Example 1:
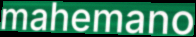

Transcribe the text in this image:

mahemano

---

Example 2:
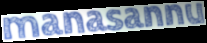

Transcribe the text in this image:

manasannu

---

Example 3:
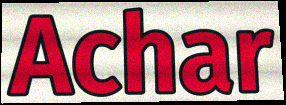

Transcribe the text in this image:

Achar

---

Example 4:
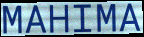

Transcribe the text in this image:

MAHIMA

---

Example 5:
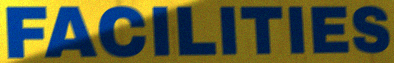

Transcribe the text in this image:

FACILITIES